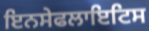
ਇਨਸੇਫਲਾਇਟਿਸ